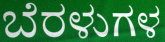
ಬೆರಳುಗಳ